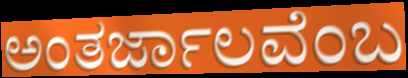
ಅಂತರ್ಜಾಲವೆಂಬ